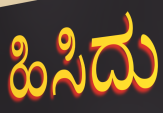
ಹಿಸಿದು